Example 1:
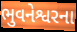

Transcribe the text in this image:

ભુવનેશ્વરના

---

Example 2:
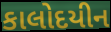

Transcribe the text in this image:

કાલોદયીન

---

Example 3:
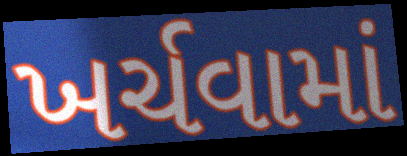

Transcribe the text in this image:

ખર્ચવામાં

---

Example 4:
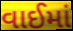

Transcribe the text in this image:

વાઈમાં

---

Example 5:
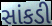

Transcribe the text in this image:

સાંકડી